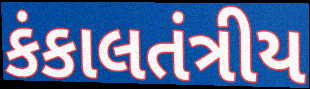
કંકાલતંત્રીય